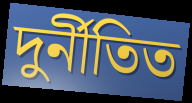
দুৰ্নীতিত